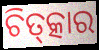
ଚିତ୍‌ତ୍କାର